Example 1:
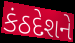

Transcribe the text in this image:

કંઠદેશને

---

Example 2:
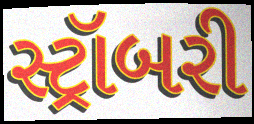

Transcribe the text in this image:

સ્ટ્રૉબરી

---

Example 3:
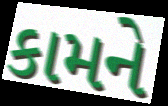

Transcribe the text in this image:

કામને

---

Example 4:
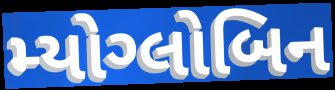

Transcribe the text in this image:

મ્યોગ્લોબિન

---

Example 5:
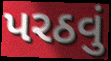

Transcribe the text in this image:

પરઠવું